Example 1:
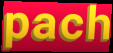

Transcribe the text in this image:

pach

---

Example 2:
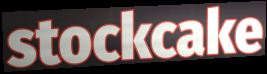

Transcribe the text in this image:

stockcake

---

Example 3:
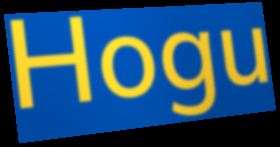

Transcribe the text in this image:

Hogu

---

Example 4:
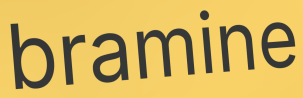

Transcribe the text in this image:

bramine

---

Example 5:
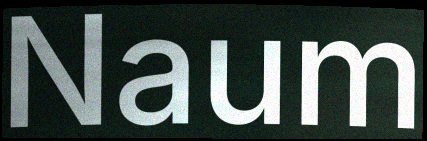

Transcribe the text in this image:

Naum